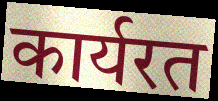
कार्यरत